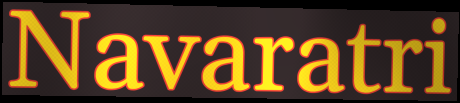
Navaratri